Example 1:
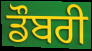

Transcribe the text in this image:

ਡੌਬਰੀ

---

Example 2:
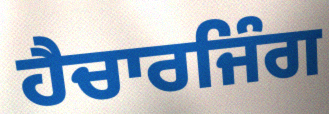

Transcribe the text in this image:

ਹੈਚਾਰਜਿੰਗ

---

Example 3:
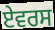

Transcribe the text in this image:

ਏਵਰਸ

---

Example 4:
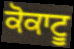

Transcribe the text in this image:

ਕੋਕਾਟੂ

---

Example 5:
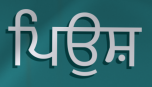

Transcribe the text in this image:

ਪਿਉਸ਼